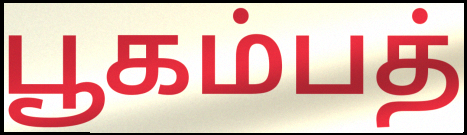
பூகம்பத்